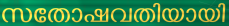
സതോഷവതിയായി